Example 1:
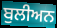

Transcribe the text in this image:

ਬੁਲੀਅਨ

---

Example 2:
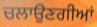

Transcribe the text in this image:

ਚਲਾਉਣਗੀਆਂ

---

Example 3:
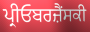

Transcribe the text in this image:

ਪ੍ਰੀਓਬਰਜ਼ੈਂਸਕੀ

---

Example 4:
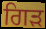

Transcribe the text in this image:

ਗਿੜ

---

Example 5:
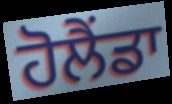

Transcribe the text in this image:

ਹੋਲੈਂਡਾ